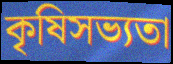
কৃষিসভ্যতা